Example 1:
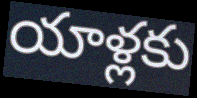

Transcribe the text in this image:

యాళ్లకు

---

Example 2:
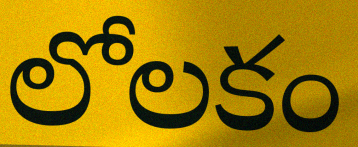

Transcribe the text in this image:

లోలకం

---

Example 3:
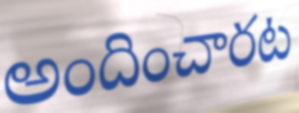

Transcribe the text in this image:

అందించారట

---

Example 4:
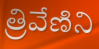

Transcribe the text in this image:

త్రివేణిని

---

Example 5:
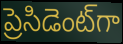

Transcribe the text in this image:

ప్రెసిడెంట్‌గా